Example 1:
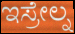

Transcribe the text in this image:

ಇಸ್ರೇಲ್ನ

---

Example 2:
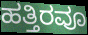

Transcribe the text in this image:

ಹತ್ತಿರವೂ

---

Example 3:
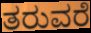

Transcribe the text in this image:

ತರುವರೆ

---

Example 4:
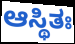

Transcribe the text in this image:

ಆಸ್ಥಿತಃ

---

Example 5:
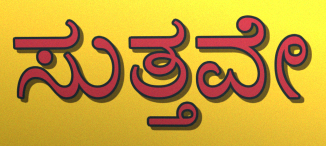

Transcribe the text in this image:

ಸುತ್ತವೇ